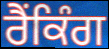
ਰੈੰਕਿੰਗ